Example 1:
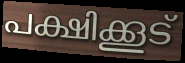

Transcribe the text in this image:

പക്ഷിക്കൂട്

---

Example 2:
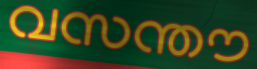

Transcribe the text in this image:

വസന്തൗ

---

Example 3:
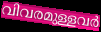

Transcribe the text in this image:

വിവരമുള്ളവർ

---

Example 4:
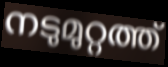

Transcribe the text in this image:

നടുമുറ്റത്ത്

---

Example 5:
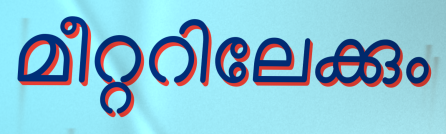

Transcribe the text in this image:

മീറ്ററിലേക്കും